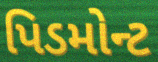
પિડમોન્ટ